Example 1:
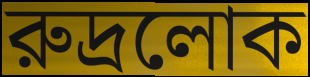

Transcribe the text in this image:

রুদ্রলোক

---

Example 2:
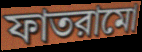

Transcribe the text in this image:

ফাতরামো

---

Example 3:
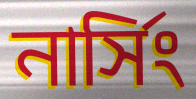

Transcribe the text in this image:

নার্সিং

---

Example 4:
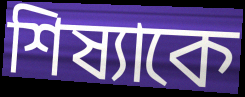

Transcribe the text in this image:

শিষ্যাকে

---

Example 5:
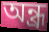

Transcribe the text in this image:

অন্ধ্র